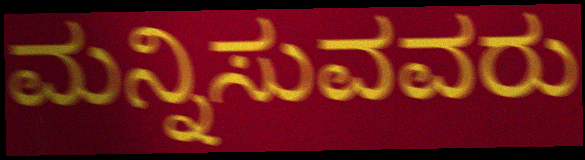
ಮನ್ನಿಸುವವರು